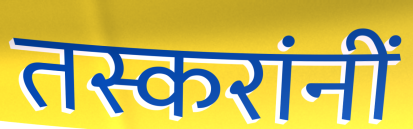
तस्करांनीं